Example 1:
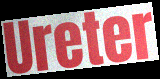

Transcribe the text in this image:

Ureter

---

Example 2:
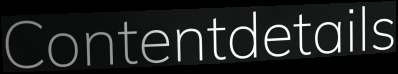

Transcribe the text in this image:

Contentdetails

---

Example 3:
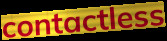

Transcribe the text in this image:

contactless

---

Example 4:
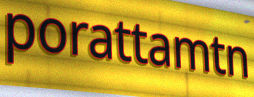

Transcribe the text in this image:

porattamtn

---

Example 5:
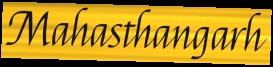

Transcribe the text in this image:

Mahasthangarh